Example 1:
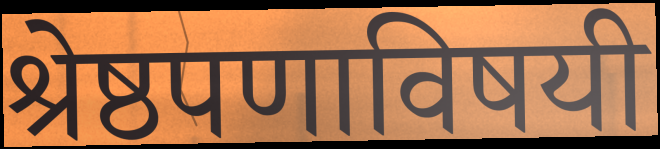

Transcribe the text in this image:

श्रेष्ठपणाविषयी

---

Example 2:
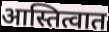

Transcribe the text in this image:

आस्तित्वात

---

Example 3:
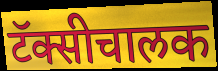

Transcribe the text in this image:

टॅक्सीचालक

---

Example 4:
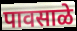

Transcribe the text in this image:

पावसाळे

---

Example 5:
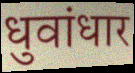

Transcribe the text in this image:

धुवांधार